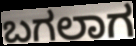
ಬಗಲಾಗ